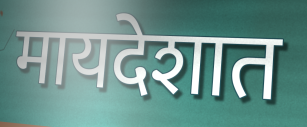
मायदेशात